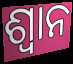
ଶ୍ଵାନ